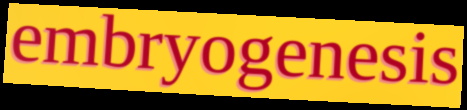
embryogenesis